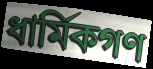
ধার্মিকগণ